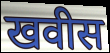
खवीस